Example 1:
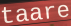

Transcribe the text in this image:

taare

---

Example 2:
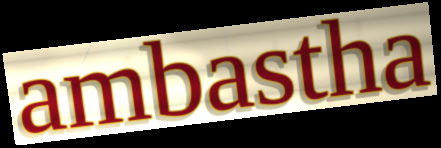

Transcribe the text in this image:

ambastha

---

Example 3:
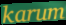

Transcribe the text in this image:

karum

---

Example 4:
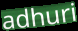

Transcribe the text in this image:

adhuri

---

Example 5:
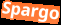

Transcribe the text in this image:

Spargo